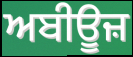
ਅਬੀਊਜ਼